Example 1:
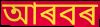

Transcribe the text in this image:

আৰবৰ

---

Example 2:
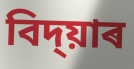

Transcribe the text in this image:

বিদ্য়াৰ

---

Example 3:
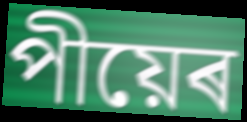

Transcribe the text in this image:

পীয়েৰ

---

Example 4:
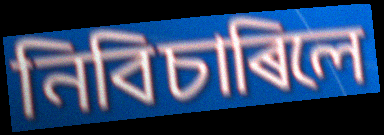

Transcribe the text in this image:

নিবিচাৰিলে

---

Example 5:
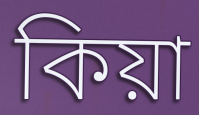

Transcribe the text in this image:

কিয়া